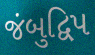
જંબુદ્વિપ